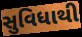
સુવિધાથી